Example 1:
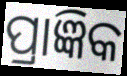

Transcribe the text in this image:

ପ୍ରାଜ୍ଞିକ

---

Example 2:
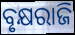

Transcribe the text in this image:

ବୃକ୍ଷରାଜି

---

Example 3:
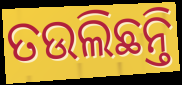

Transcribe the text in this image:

ତଉଲିଛନ୍ତି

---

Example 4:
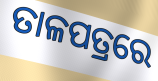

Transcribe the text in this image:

ତାଳପତ୍ରରେ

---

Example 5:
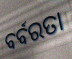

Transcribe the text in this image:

ବର୍ବରତା